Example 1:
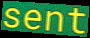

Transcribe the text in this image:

sent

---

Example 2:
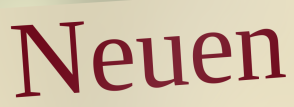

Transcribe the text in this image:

Neuen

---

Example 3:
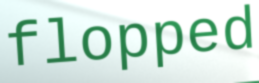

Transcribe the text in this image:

flopped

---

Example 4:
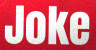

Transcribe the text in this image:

Joke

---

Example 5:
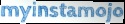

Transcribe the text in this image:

myinstamojo